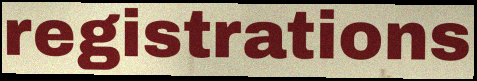
registrations